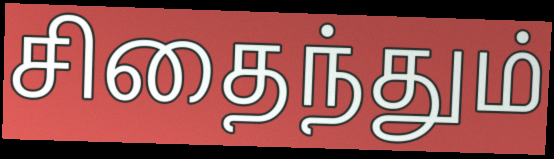
சிதைந்தும்